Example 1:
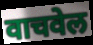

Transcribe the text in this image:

वाचवेल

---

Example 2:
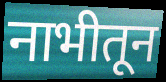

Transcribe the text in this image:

नाभीतून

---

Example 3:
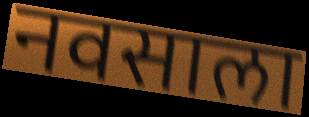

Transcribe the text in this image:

नवसाला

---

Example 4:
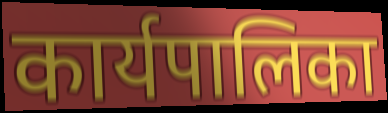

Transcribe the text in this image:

कार्यपालिका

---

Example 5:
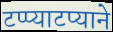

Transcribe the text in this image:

टप्प्याटप्याने